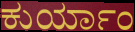
ಕುರ್ಯಾಂ